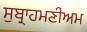
ਸੁਬ੍ਰਾਹਮਣੀਅਮ